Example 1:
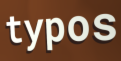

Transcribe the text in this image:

typos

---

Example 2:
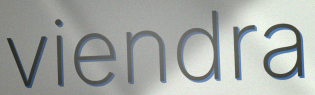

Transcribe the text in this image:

viendra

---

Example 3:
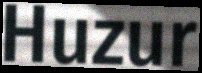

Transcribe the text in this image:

Huzur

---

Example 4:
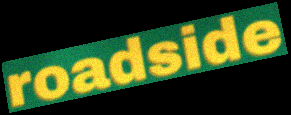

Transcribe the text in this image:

roadside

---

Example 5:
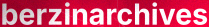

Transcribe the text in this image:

berzinarchives